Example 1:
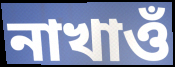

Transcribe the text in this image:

নাখাওঁ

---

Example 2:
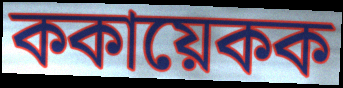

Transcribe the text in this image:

ককায়েকক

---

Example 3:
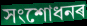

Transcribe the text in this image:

সংশোধনৰ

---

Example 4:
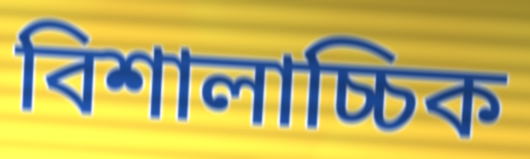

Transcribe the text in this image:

বিশালাচ্চিক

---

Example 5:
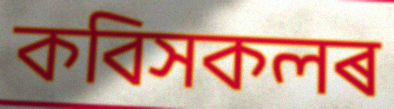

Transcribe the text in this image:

কবিসকলৰ